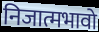
निजात्मभावो